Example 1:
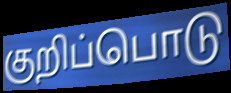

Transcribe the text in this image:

குறிப்பொடு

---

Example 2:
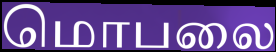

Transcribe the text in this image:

மொபலை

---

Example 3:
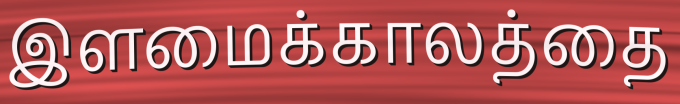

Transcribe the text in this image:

இளமைக்காலத்தை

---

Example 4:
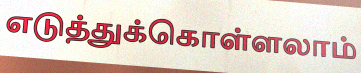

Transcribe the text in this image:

எடுத்துக்கொள்ளலாம்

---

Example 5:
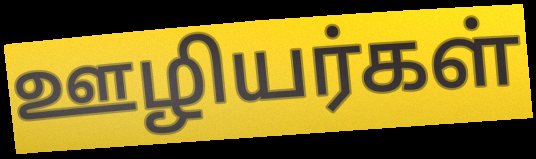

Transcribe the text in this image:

ஊழியர்கள்